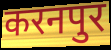
करनपुर